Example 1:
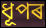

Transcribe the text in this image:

ধূপৰ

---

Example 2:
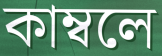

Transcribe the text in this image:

কাম্বলে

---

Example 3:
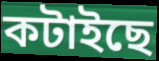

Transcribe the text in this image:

কটাইছে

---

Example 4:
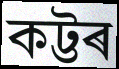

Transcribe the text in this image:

কট্টৰ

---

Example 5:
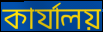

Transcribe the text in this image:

কাৰ্যালয়